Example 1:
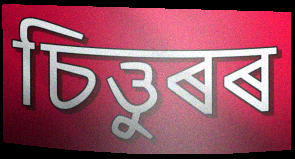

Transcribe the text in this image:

চিত্তুৰৰ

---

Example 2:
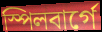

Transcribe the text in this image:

স্পিলবাৰ্গে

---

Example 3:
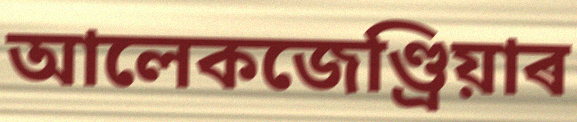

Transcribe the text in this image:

আলেকজেণ্ড্ৰিয়াৰ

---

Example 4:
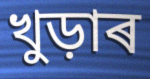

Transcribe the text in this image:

খুড়াৰ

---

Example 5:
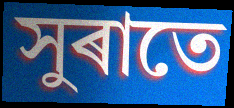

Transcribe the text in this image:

সুৰাতে